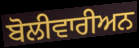
ਬੋਲੀਵਾਰੀਅਨ